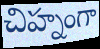
చిహ్నంగా